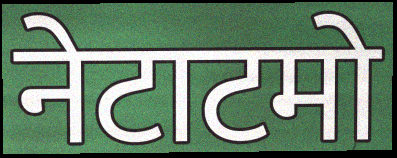
नेटाटमो